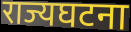
राज्यघटना